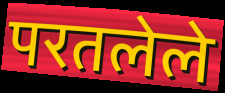
परतलेले